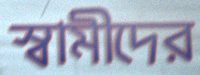
স্বামীদের